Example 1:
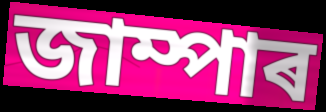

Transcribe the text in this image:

জাম্পাৰ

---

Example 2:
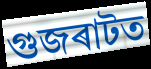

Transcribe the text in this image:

গুজৰাটত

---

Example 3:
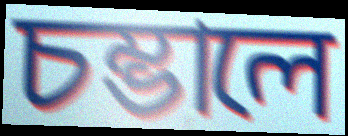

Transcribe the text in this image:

চম্ভালে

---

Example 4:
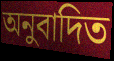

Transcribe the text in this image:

অনুবাদিত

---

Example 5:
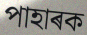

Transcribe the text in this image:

পাহাৰক